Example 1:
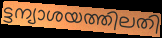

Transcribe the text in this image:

ട്ടന്യാശയത്തിലതി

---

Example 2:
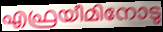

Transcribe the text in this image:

എഫ്രയീമിനോടു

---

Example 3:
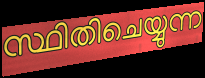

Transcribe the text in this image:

സ്ഥിതിചെയ്യുന്ന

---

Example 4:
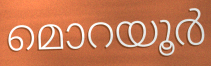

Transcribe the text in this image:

മൊറയൂർ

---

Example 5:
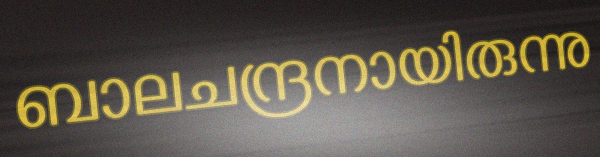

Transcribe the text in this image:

ബാലചന്ദ്രനായിരുന്നു